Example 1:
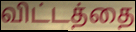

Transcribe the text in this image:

விட்டத்தை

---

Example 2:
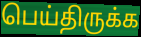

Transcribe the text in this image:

பெய்திருக்க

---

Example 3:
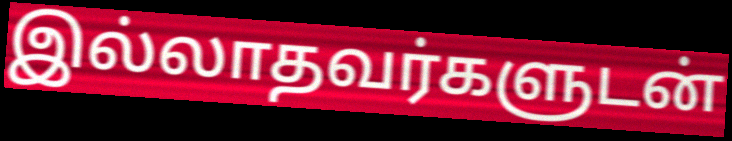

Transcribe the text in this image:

இல்லாதவர்களுடன்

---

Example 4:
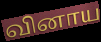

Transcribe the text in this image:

வினாய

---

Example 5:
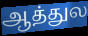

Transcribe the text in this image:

ஆத்துல